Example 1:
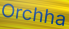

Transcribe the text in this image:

Orchha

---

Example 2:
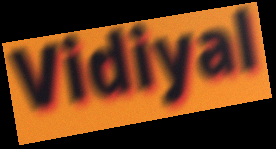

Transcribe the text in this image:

Vidiyal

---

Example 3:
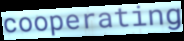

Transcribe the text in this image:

cooperating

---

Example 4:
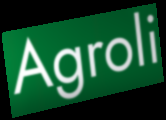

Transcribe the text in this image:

Agroli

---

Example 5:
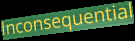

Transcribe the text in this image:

Inconsequential